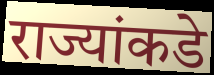
राज्यांकडे